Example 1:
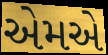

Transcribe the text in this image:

એમએ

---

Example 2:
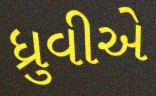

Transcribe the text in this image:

ધ્રુવીએ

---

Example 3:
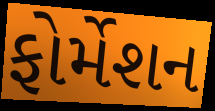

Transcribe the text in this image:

ફોર્મેશન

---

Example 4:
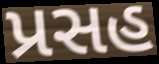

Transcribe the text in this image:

પ્રસહ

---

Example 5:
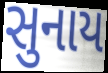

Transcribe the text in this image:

સુનાય